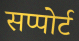
सप्पोर्ट